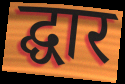
द्घार